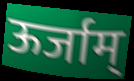
ऊर्जाम्